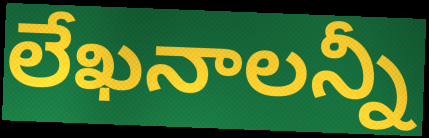
లేఖనాలన్నీ